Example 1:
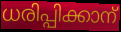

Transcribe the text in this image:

ധരിപ്പിക്കാന്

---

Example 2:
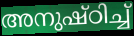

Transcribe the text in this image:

അനുഷ്ഠിച്ച്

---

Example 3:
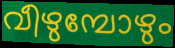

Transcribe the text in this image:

വീഴുമ്പോഴും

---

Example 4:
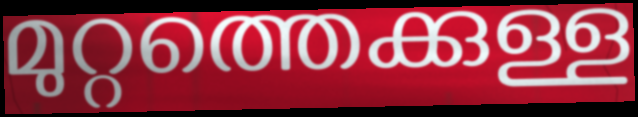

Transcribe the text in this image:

മുറ്റത്തെക്കുള്ള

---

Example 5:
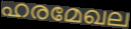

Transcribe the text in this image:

ഹരമേഖല